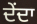
ਦੇਂਦਾ